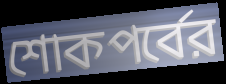
শোকপর্বের